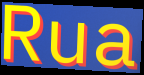
Rua